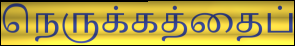
நெருக்கத்தைப்